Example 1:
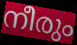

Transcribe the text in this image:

നീരും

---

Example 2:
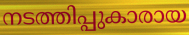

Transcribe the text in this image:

നടത്തിപ്പുകാരായ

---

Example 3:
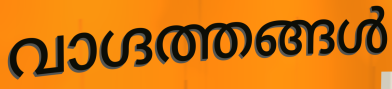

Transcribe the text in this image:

വാഗ്ദത്തങ്ങൾ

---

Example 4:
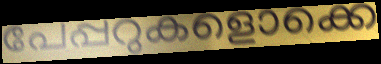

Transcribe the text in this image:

പേപ്പറുകളൊക്കെ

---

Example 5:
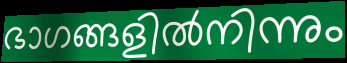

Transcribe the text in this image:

ഭാഗങ്ങളിൽനിന്നും